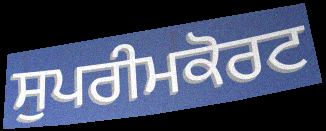
ਸੁਪਰੀਮਕੋਰਟ